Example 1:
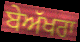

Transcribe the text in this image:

ਬੇਅੱਖਰਾ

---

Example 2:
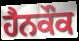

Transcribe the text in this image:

ਹੈਨਕੌਕ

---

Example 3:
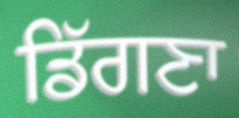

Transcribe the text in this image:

ਡਿੱਗਣਾ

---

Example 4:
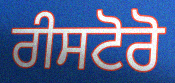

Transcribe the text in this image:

ਰੀਸਟੋਰੋ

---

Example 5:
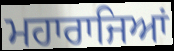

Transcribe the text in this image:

ਮਹਾਰਾਜਿਆਂ